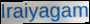
Iraiyagam